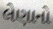
લેણાનો